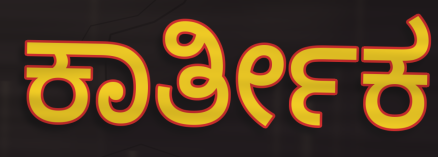
ಕಾರ್ತೀಕ